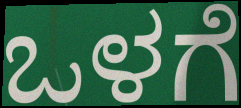
ಒಳಗೆ